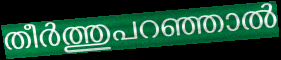
തീർത്തുപറഞ്ഞാൽ